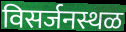
विसर्जनस्थळ